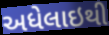
અધેલાઇથી